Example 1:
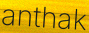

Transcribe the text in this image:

anthak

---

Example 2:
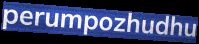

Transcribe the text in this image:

perumpozhudhu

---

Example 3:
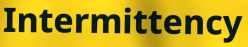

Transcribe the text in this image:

Intermittency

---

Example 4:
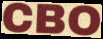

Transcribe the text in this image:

CBO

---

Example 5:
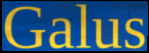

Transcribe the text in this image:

Galus